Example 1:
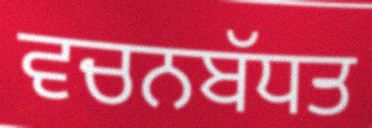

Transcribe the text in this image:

ਵਚਨਬੱਧਤ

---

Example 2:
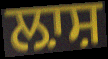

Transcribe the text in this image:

ਲ਼ਾਸ਼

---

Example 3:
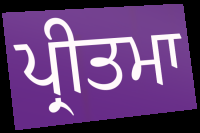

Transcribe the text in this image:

ਪ੍ਰੀਤਮਾ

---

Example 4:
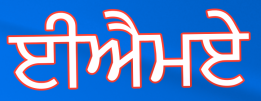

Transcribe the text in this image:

ਈਐਮਏ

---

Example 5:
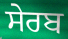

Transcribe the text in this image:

ਸੇਰਬ